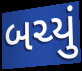
બચ્યું